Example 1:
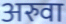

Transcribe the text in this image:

अरुवा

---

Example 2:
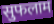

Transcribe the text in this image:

सुफलाम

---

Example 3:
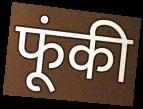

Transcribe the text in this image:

फूंकी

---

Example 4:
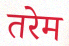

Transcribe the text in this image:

तरेम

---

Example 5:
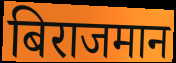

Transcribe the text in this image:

बिराजमान